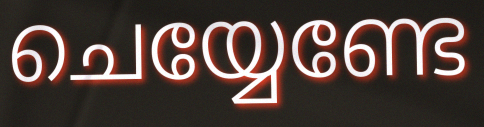
ചെയ്യേണ്ടേ